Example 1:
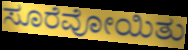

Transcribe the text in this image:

ಸೂರೆವೋಯಿತು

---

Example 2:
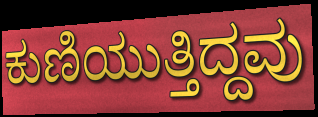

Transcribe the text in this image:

ಕುಣಿಯುತ್ತಿದ್ದವು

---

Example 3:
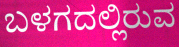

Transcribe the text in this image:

ಬಳಗದಲ್ಲಿರುವ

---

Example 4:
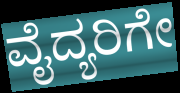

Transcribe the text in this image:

ವೈದ್ಯರಿಗೇ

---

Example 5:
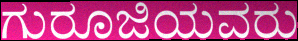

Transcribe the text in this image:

ಗುರೂಜಿಯವರು